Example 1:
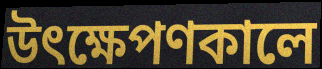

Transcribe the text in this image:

উৎক্ষেপণকালে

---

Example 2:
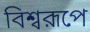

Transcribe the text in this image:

বিশ্বরূপে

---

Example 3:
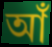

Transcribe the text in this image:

আঁ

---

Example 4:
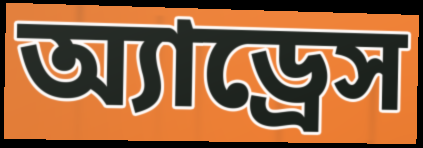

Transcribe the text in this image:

অ্যাড্রেস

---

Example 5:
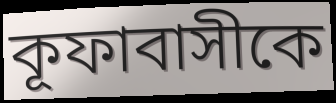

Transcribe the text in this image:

কূফাবাসীকে